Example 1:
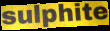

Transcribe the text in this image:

sulphite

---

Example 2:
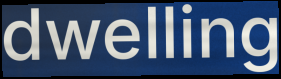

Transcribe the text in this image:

dwelling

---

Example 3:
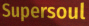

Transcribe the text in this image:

Supersoul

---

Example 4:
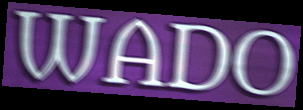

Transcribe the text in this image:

WADO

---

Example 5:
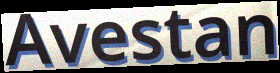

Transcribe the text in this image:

Avestan